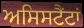
ਅਸਿਸਟੈਂਟਾਂ